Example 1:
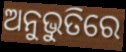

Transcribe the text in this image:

ଅନୁଭୁତିରେ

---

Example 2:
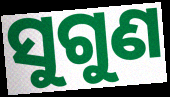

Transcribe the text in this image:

ସୁଗୁଣ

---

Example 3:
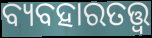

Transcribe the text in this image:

ବ୍ୟବହାରତତ୍ତ୍ବ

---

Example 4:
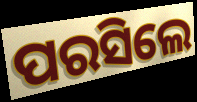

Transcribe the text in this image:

ପରସିଲେ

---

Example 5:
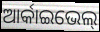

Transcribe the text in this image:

ଆର୍କାଇଭେଲ୍